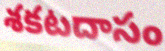
శకటదాసం